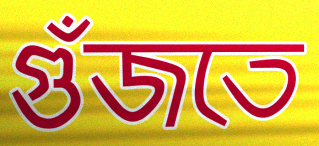
গুঁজতে